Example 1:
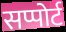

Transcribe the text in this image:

सप्पोर्ट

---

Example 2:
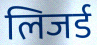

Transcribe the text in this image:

लिजर्ड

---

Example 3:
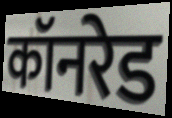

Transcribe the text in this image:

कॉनरेड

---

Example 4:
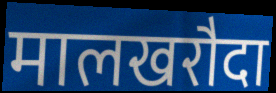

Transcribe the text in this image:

मालखरौदा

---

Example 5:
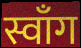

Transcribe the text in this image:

स्वाँग